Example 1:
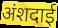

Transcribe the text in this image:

अंशदाई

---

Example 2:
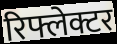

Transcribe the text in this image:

रिफ्लेक्टर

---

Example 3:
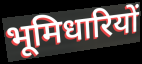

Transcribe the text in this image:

भूमिधारियों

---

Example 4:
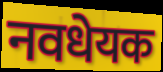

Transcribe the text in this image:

नवधेयक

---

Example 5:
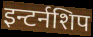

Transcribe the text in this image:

इन्टर्नशिप